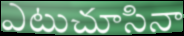
ఎటుచూసినా